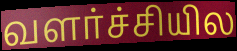
வளர்ச்சியில